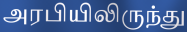
அரபியிலிருந்து